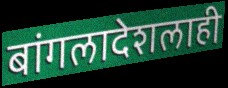
बांगलादेशलाही